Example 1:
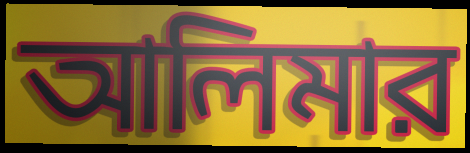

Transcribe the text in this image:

আলিমার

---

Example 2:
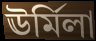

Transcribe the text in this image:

ঊর্মিলা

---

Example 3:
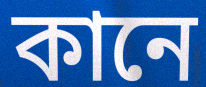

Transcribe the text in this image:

কানে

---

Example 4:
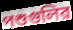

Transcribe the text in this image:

পশুগুলির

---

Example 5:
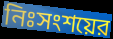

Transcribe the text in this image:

নিঃসংশয়ের